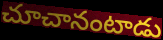
చూచానంటాడు